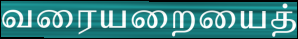
வரையறையைத்